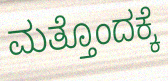
ಮತ್ತೊಂದಕ್ಕೆ